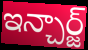
ఇన్చార్జ్